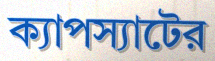
ক্যাপস্যাটের